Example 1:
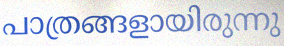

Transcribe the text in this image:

പാത്രങ്ങളായിരുന്നു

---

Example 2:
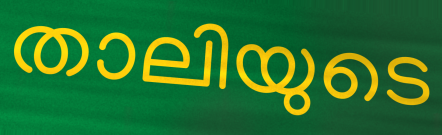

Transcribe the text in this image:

താലിയുടെ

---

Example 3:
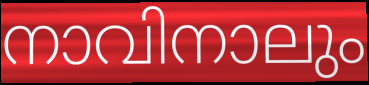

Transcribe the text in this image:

നാവിനാലും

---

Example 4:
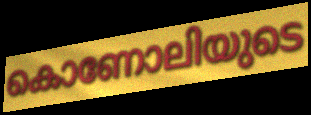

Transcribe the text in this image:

കൊണോലിയുടെ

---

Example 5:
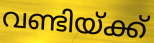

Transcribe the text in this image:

വണ്ടിയ്ക്ക്